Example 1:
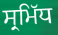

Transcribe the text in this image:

ਸ੍ਰਮਿੱਧ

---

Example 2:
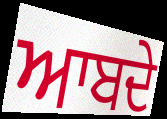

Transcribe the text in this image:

ਆਬਦੇ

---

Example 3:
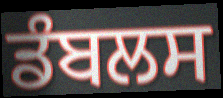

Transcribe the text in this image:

ਡੰਬਲਸ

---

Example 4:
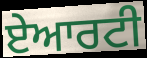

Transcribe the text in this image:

ਏਆਰਟੀ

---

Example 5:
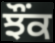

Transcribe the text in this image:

ਝੌਂਕ